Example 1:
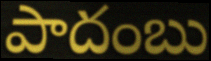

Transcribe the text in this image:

పాదంబు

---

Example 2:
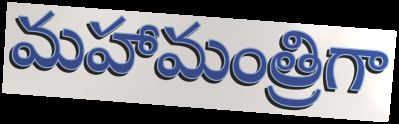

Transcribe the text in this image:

మహామంత్రిగా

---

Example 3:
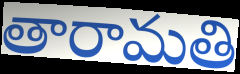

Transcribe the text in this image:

తారామతి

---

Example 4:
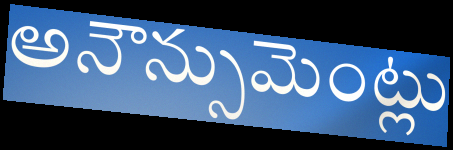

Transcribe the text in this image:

అనౌన్సుమెంట్లు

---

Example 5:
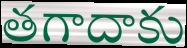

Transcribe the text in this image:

తగాదాకు